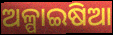
ଅଳ୍ପାଇଷିଆ